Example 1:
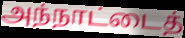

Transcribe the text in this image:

அந்நாட்டைத்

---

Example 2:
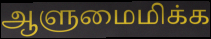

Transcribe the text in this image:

ஆளுமைமிக்க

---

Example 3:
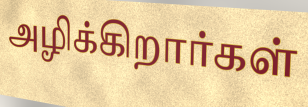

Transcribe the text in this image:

அழிக்கிறார்கள்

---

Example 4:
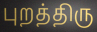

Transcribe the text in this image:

புறத்திரு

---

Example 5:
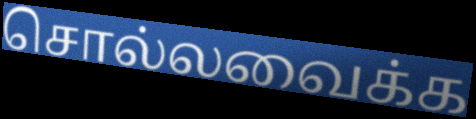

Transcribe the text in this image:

சொல்லவைக்க